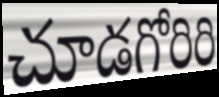
చూడగోరిరి